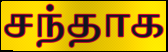
சந்தாக